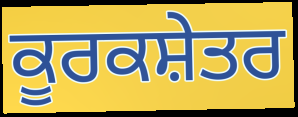
ਕੂਰਕਸ਼ੇਤਰ